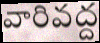
వారివద్ద